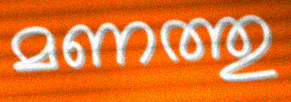
മണത്തു